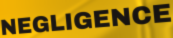
NEGLIGENCE